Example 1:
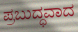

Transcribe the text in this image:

ಪ್ರಬುದ್ಧವಾದ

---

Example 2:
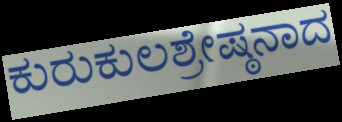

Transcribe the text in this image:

ಕುರುಕುಲಶ್ರೇಷ್ಠನಾದ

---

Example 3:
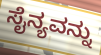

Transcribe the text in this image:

ಸೈನ್ಯವನ್ನು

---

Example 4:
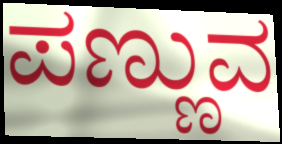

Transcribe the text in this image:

ಪಣ್ಣುವ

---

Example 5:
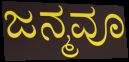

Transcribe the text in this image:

ಜನ್ಮವೂ